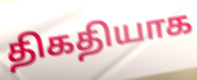
திகதியாக